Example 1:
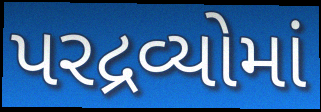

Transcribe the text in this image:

પરદ્રવ્યોમાં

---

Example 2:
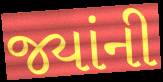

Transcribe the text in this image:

જ્યાંની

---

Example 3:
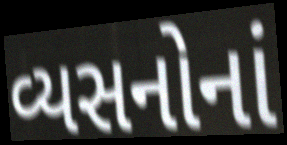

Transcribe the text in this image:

વ્યસનોનાં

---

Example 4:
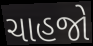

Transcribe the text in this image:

ચાહજો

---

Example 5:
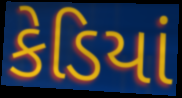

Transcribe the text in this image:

કેડિયાં